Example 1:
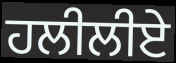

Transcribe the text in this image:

ਹਲੀਲੀਏ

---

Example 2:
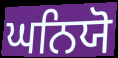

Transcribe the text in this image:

ਘਨਿਯੋ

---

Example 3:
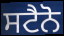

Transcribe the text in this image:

ਸਟੈਨੋ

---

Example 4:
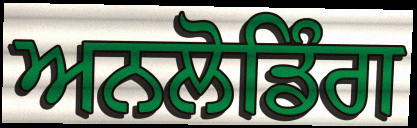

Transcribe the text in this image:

ਅਨਲੋਡਿੰਗ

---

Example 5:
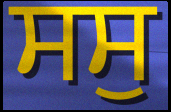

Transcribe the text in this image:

ਸਸੁ